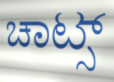
ಚಾಟ್ಸ್